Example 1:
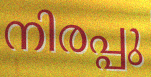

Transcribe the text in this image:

നിരപ്പു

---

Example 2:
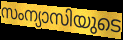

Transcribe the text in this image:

സംന്യാസിയുടെ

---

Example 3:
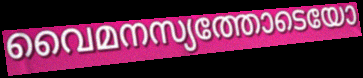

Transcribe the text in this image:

വൈമനസ്യത്തോടെയോ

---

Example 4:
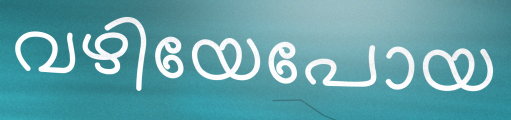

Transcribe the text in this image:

വഴിയേപോയ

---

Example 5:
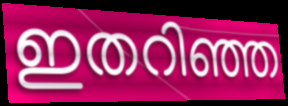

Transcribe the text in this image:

ഇതറിഞ്ഞ